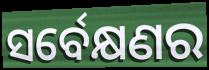
ସର୍ବେକ୍ଷଣର